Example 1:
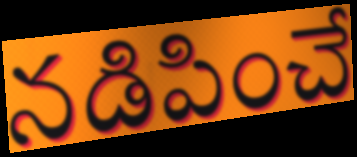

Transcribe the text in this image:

నడిపించే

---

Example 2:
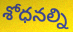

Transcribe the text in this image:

శోధనల్ని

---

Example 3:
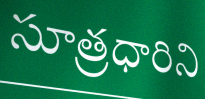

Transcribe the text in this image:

సూత్రధారిని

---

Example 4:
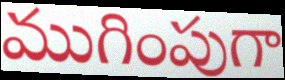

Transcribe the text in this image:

ముగింపుగా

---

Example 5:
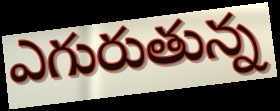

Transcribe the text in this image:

ఎగురుతున్న